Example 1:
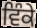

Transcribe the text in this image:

ਵਿੰਕੇ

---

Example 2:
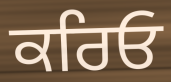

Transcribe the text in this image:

ਕਰਿਓ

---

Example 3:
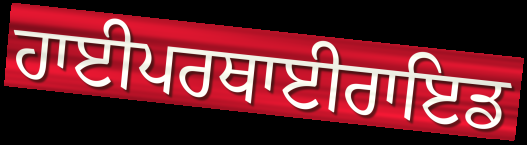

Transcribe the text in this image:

ਹਾਈਪਰਥਾਈਰਾਇਡ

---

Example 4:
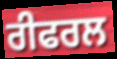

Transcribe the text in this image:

ਰੀਫਰਲ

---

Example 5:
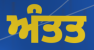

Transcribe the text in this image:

ਅੰਤਤ